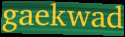
gaekwad